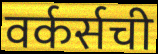
वर्कर्सची